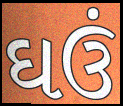
ઘઉં